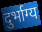
दुर्भाग्य